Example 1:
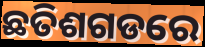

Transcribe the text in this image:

ଛତିଶଗଡରେ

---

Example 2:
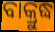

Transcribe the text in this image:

ବାକ୍ରୁଦ୍ଧ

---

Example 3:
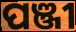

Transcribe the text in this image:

ପଞ୍ଜୀ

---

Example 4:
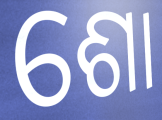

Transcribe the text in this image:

ଶୋ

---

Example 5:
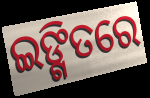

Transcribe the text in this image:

ଇଙ୍ଗିତରେ